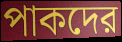
পাকদের